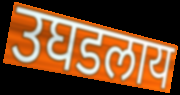
उघडलाय